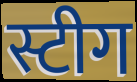
स्टीग